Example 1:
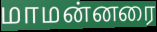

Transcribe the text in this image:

மாமன்னரை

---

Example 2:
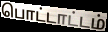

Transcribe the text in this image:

பொட்டாட்டம்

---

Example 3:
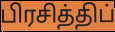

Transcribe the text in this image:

பிரசித்திப்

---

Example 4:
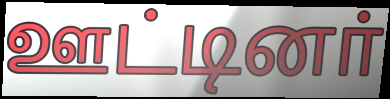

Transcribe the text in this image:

ஊட்டினர்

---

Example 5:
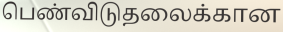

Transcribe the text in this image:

பெண்விடுதலைக்கான